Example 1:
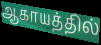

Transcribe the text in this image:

ஆகாயத்தில்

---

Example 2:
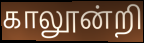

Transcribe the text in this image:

காலூன்றி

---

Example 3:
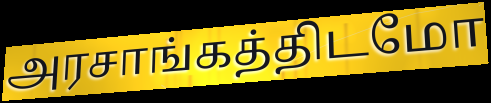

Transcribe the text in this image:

அரசாங்கத்திடமோ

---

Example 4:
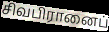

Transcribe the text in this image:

சிவபிரானைப்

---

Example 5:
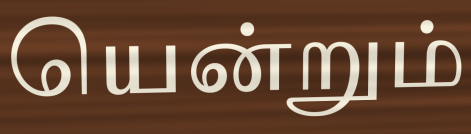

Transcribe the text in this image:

யென்றும்